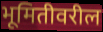
भूमितीवरील